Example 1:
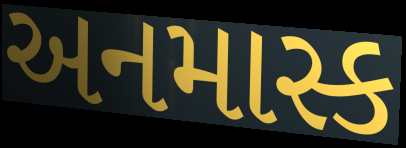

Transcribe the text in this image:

અનમાસ્ક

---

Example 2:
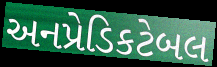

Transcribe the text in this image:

અનપ્રેડિકટેબલ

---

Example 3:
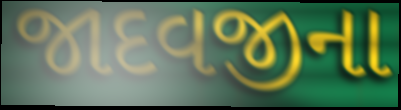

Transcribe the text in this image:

જાદવજીના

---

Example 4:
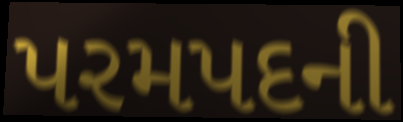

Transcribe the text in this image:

પરમપદની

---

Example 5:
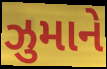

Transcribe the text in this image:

ઝુમાને